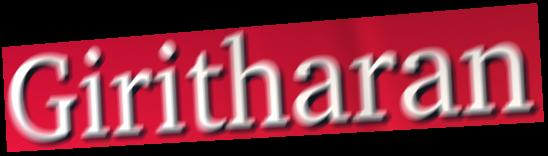
Giritharan